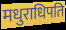
मधुराधिपति